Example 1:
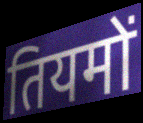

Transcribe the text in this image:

तियमों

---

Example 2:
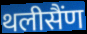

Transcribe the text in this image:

थलीसैंण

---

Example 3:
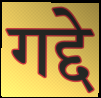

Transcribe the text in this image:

गद्दे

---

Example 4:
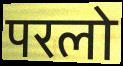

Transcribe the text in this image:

परलो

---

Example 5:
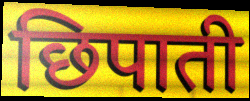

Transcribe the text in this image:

छिपाती